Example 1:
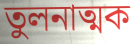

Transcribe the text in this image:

তুলনাত্মক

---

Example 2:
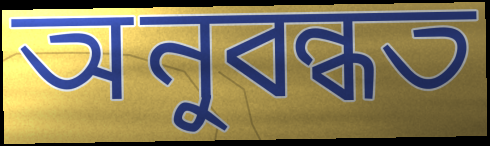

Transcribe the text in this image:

অনুবন্ধত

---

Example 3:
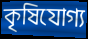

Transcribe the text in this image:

কৃষিযোগ্য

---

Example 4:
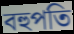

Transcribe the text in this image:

বহুপতি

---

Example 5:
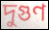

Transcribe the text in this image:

দুগুণ